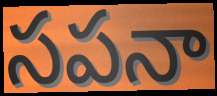
సపనా